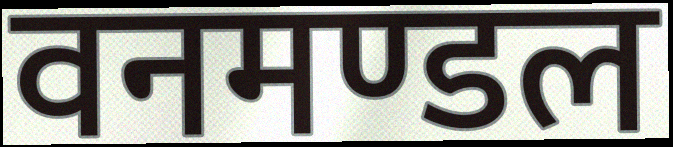
वनमण्डल